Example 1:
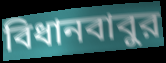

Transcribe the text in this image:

বিধানবাবুর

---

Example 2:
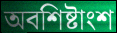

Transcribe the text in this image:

অবশিষ্টাংশ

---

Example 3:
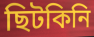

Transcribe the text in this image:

ছিটকিনি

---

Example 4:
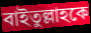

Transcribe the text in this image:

বাইতুল্লাহকে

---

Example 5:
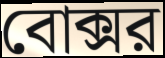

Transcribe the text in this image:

বোক্সর